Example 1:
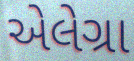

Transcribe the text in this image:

એલેગ્રા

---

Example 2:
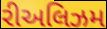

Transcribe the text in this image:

રીઅલિઝમ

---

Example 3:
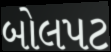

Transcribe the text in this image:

બોલપટ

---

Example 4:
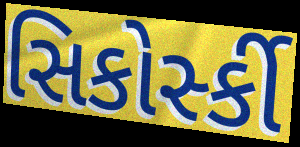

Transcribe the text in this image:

સિકોર્સ્કી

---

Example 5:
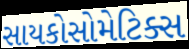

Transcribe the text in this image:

સાયકોસોમેટિક્સ